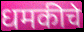
धमकीचे